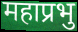
महाप्रभु